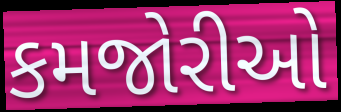
કમજોરીઓ